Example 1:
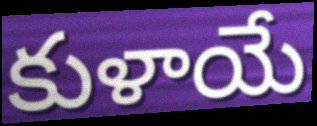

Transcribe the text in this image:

కుళాయే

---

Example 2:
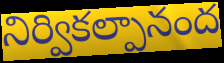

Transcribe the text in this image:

నిర్వికల్పానంద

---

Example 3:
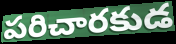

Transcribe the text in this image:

పరిచారకుడ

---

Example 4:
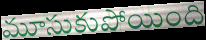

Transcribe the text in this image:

మూసుకుపోయింది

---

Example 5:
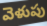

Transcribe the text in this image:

వెళుపు